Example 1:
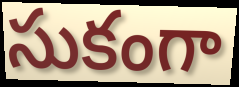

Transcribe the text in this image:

సుకంగా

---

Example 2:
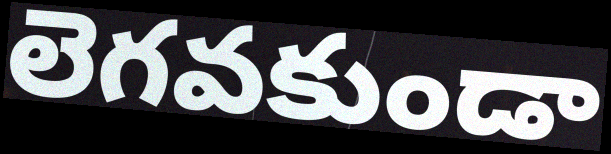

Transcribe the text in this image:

లెగవకుండా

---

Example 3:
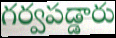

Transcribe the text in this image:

గర్వపడ్డారు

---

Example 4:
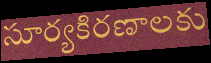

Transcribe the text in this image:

సూర్యకిరణాలకు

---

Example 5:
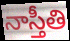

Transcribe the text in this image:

నాస్తీతి